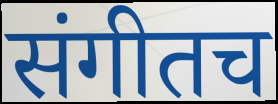
संगीतच